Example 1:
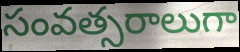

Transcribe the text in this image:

సంవత్సరాలుగా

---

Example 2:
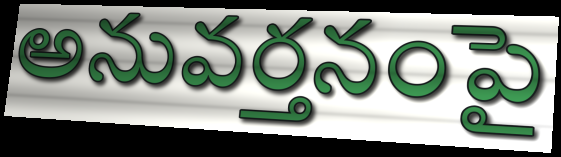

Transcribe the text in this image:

అనువర్తనంపై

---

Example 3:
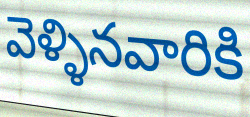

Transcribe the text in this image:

వెళ్ళినవారికి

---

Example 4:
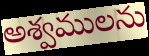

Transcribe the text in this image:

అశ్వములను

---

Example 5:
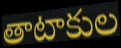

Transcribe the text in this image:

తాటాకుల